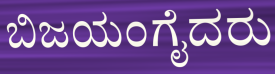
ಬಿಜಯಂಗೈದರು